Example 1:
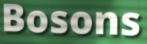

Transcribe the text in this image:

Bosons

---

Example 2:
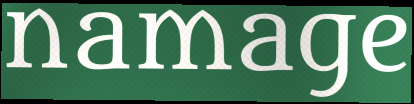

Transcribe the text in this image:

namage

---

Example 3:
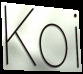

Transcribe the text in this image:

Koi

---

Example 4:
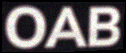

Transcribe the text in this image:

OAB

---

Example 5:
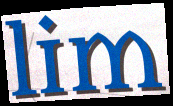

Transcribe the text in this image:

lim